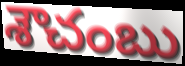
శౌచంబు